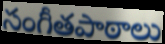
సంగీతపాఠాలు